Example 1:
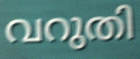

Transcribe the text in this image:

വറുതി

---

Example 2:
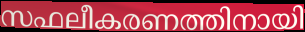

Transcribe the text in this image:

സഫലീകരണത്തിനായി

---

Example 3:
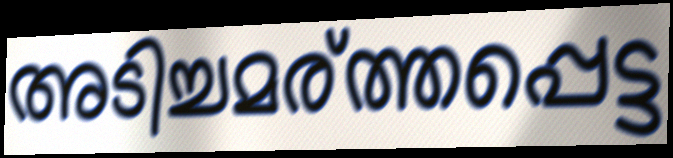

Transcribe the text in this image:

അടിച്ചമര്ത്തപ്പെട്ട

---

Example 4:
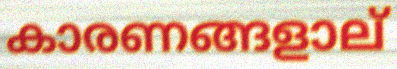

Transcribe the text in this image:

കാരണങ്ങളാല്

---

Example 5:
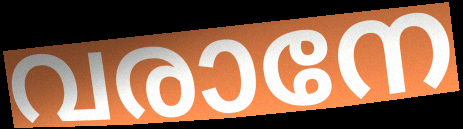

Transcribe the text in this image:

വരാനേ